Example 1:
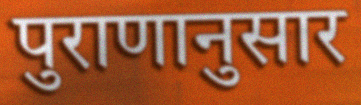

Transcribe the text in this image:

पुराणानुसार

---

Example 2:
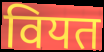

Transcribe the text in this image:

वियत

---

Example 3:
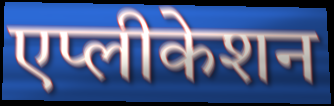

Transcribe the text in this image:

एप्‍लीकेशन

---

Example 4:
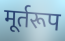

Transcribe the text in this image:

मूर्तरूप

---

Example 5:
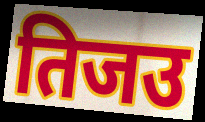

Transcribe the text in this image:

तिजउ